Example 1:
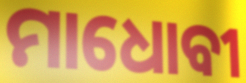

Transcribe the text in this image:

ମାଧୋବୀ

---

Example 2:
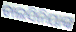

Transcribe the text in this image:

ଡାଲସିନିୟାଙ୍କ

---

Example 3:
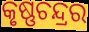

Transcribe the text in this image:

କୃଷ୍ଣଚନ୍ଦ୍ରର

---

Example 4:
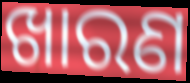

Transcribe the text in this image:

ଖାରଣ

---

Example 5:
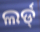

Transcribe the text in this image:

ଲର୍ଡ୍